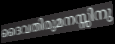
ദൈവതിരുമനസ്സിനു